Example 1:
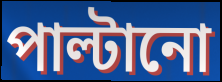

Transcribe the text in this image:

পাল্টানো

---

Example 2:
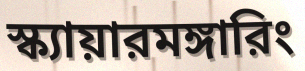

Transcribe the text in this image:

স্ক্যায়ারমঙ্গারিং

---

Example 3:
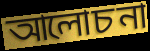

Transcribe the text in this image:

আলোচনা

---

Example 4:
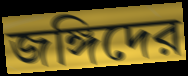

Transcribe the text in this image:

জঙ্গিদের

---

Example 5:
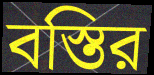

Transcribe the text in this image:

বস্তির